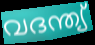
വദന്ത്യ്